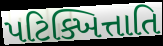
પટિક્ખિત્તાતિ